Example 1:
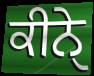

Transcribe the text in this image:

ਕੀਨੇੑ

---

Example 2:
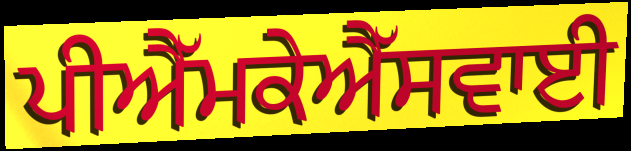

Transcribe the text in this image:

ਪੀਐੱਮਕੇਐੱਸਵਾਈ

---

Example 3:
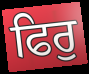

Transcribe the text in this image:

ਫਿਰੁ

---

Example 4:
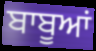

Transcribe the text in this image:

ਬਾਬੂਆਂ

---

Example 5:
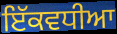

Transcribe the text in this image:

ਇੱਕਵਧੀਆ